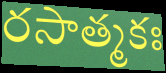
రసాత్మకః